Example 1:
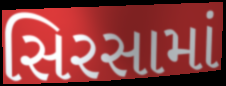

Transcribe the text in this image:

સિરસામાં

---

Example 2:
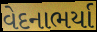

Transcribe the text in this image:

વેદનાભર્યા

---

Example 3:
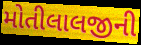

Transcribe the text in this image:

મોતીલાલજીની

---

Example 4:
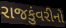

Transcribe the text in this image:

રાજકુંવરીનો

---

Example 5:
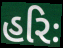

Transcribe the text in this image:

હરિઃ